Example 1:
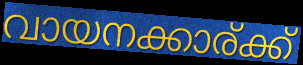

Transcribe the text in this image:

വായനക്കാര്ക്ക്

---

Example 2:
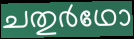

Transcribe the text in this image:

ചതുർഥോ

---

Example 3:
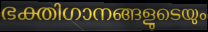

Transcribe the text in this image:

ഭക്തിഗാനങ്ങളുടെയും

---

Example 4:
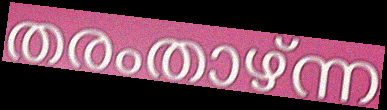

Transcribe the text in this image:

തരംതാഴ്ന്ന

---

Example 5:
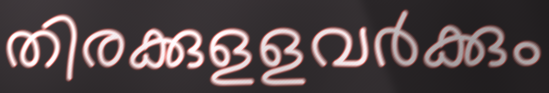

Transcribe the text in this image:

തിരക്കുളളവർക്കും